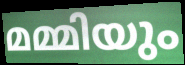
മമ്മിയും